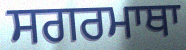
ਸਗਰਮਾਥਾ